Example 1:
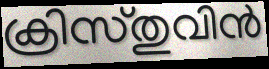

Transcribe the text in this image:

ക്രിസ്തുവിൻ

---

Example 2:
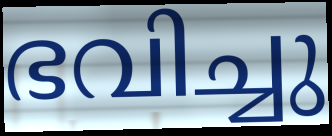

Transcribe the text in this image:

ഭവിച്ചു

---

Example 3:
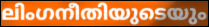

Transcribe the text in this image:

ലിംഗനീതിയുടെയും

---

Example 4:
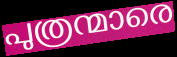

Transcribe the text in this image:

പുത്രന്മാരെ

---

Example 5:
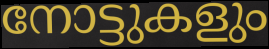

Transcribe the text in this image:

നോട്ടുകളും